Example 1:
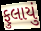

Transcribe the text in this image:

ફુલાયું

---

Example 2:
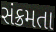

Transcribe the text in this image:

સંક્રમતા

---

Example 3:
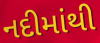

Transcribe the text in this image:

નદીમાંથી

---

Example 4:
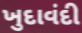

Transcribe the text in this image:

ખુદાવંદી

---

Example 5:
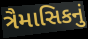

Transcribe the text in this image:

ત્રૈમાસિકનું